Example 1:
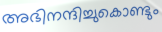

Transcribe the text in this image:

അഭിനന്ദിച്ചുകൊണ്ടും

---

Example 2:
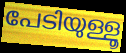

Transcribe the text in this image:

പേടിയുള്ളൂ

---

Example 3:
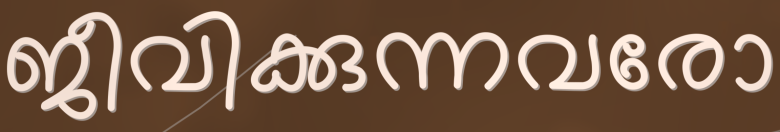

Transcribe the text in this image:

ജീവിക്കുന്നവരോ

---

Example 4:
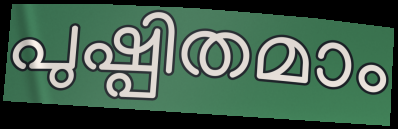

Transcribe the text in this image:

പുഷ്പിതമാം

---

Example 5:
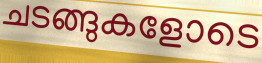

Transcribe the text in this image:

ചടങ്ങുകളോടെ